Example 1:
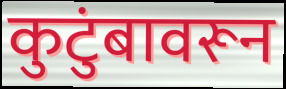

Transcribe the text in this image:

कुटुंबावरून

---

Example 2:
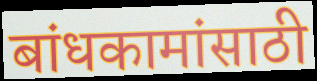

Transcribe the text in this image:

बांधकामांसाठी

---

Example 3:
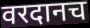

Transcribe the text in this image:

वरदानच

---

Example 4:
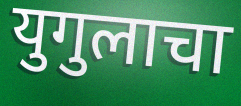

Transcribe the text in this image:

युगुलाचा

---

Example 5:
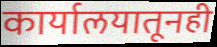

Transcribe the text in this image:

कार्यालयातूनही